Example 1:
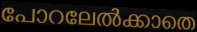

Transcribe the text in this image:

പോറലേൽക്കാതെ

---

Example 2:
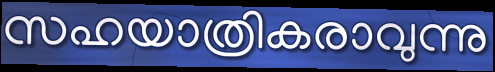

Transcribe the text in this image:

സഹയാത്രികരാവുന്നു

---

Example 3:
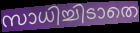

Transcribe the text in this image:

സാധിച്ചിടാതെ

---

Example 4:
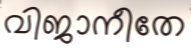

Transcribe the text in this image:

വിജാനീതേ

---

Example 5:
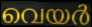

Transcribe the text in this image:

വെയർ